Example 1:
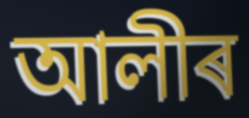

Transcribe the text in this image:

আলীৰ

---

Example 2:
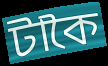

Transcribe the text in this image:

টাকৈ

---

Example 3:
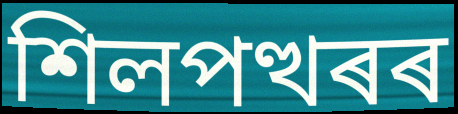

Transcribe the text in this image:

শিলপত্থৰৰ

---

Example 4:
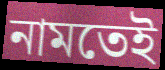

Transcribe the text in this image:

নামতেই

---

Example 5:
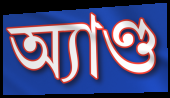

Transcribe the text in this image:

অ্যাণ্ড